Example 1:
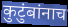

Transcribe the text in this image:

कुटुंबांनाच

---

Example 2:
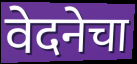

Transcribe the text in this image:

वेदनेचा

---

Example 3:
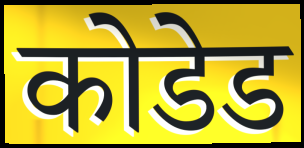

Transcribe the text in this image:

कोडेड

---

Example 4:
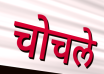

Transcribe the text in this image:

चोचले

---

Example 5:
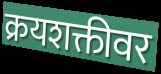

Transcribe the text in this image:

क्रयशक्तीवर